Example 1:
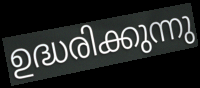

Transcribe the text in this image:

ഉദ്ധരിക്കുന്നു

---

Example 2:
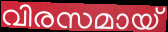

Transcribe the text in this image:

വിരസമായ്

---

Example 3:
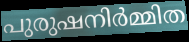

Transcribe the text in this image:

പുരുഷനിർമ്മിത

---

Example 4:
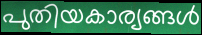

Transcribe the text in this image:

പുതിയകാര്യങ്ങൾ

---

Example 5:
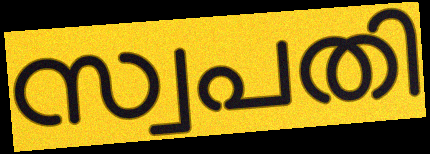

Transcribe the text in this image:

സ്വപതി